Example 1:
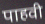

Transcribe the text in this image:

पाहवी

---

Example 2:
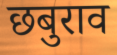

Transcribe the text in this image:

छबुराव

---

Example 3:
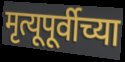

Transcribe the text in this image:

मृत्यूपूर्वीच्या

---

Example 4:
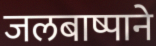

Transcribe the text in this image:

जलबाष्पाने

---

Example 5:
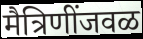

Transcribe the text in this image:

मैत्रिणींजवळ